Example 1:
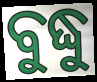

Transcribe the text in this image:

ବୁଦ୍ଧୁ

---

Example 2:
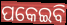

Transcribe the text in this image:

ପକେଇବି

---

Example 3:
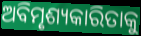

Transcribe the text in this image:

ଅବିମୃଶ୍ୟକାରିତାକୁ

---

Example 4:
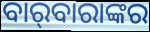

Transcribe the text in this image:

ବାର୍‌ବାରାଙ୍କର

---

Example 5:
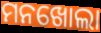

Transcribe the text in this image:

ମନଖୋଲା